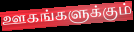
ஊகங்களுக்கும்